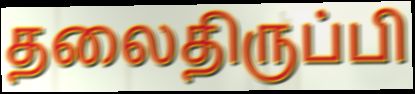
தலைதிருப்பி